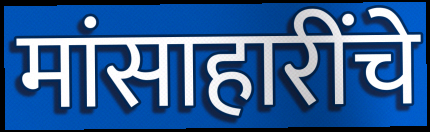
मांसाहारींचे